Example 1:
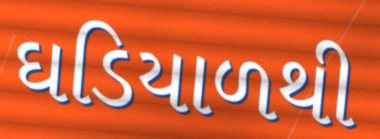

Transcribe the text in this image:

ઘડિયાળથી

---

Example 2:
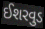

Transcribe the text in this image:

ઈશરવુડ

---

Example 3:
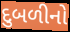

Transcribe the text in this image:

દુબળીનો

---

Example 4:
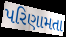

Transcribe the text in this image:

પરિણામતા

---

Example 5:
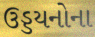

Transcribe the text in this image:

ઉડ્ડયનોના